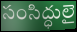
సంసిద్ధులై